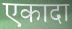
एकादा